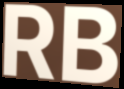
RB